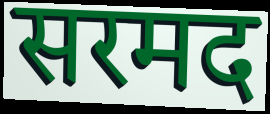
सरमद